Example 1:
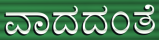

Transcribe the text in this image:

ವಾದದಂತೆ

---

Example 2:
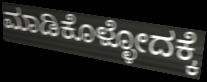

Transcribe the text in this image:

ಮಾಡಿಕೊಳ್ಳೋದಕ್ಕೆ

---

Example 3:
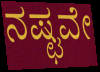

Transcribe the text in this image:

ನಷ್ಟವೇ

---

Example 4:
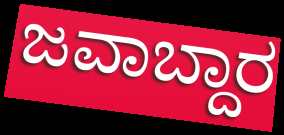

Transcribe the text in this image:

ಜವಾಬ್ದಾರ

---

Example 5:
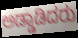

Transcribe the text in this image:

ಅಡ್ಡಾಡಿದರು